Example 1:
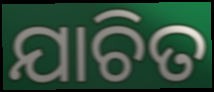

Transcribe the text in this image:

ଯାଚିତ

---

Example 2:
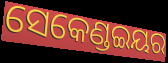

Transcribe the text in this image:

ସେକେଣ୍ଡଇୟର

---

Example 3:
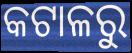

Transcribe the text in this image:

କଟାଳରୁ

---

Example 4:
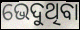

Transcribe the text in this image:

ଭେଦୁଥିବା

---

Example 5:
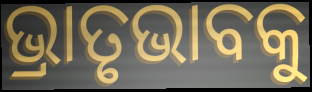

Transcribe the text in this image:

ଭ୍ରାତୃଭାବକୁ